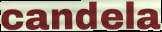
candela